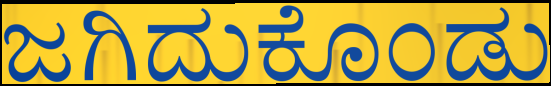
ಜಗಿದುಕೊಂಡು